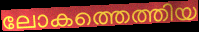
ലോകത്തെത്തിയ